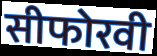
सीफोरवी